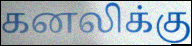
கனலிக்கு